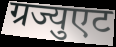
ग्रज्युएट